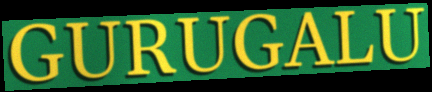
GURUGALU